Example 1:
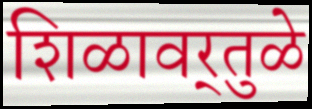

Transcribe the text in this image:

शिळावर्तुळे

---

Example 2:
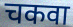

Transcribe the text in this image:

चकवा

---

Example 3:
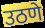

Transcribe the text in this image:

उठणे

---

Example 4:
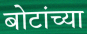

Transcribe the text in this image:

बोटांच्या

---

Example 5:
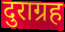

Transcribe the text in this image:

दुराग्रह